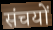
संचयों